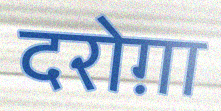
दरोग़ा